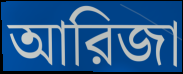
আরিজা